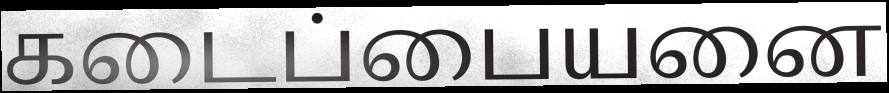
கடைப்பையனை